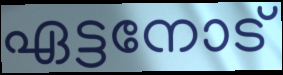
ഏട്ടനോട്